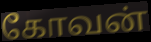
கோவன்